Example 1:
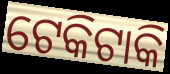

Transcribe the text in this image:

ଟେକିଟାକି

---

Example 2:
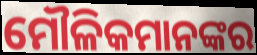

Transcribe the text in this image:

ମୌଳିକମାନଙ୍କର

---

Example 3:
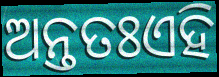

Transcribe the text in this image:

ଅନ୍ତତଃଏହି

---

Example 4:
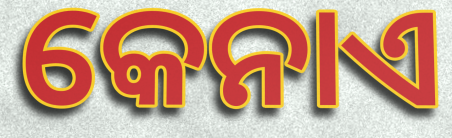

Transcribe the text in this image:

କେନାଏ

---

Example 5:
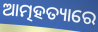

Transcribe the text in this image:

ଆତ୍ମହତ୍ୟାରେ